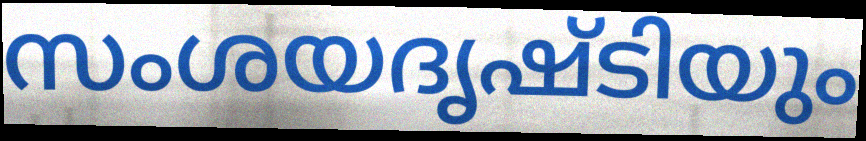
സംശയദൃഷ്ടിയും